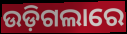
ଉଡ଼ିଗଲାରେ